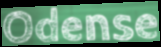
Odense